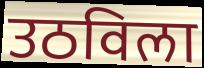
उठविला